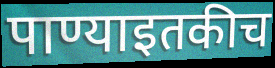
पाण्याइतकीच